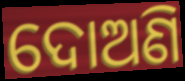
ଦୋଅଣି